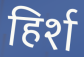
हिर्श